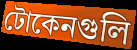
টোকেনগুলি